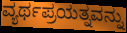
ವ್ಯರ್ಥಪ್ರಯತ್ನವನ್ನು